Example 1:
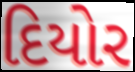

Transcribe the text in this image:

દિયોર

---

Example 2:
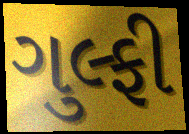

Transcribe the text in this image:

ગુલ્ફી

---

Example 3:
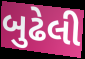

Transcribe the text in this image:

બુઢેલી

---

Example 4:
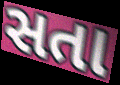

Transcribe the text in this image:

સતા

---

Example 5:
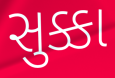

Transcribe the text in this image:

સુક્કા